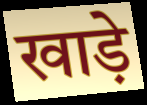
खाड़े